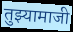
तुझ्यामाजी